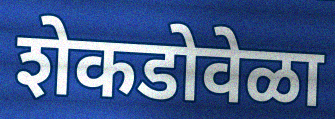
शेकडोवेळा